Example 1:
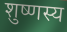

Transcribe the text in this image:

शुष्णस्य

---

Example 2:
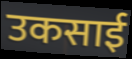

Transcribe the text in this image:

उकसाई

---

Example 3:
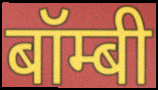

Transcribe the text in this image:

बॉम्बी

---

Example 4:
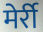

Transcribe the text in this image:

मेर्री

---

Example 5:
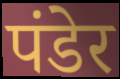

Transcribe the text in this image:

पंडेर